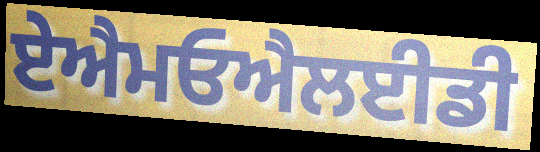
ਏਐਮਓਐਲਈਡੀ